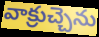
వాక్రుచ్చెను